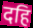
दहि